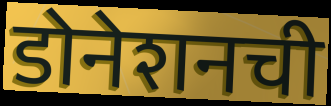
डोनेशनची